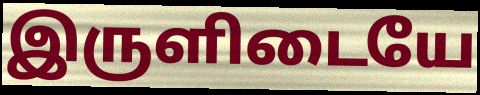
இருளிடையே